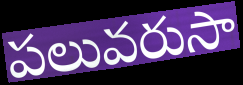
పలువరుసా